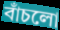
বাঁচলো